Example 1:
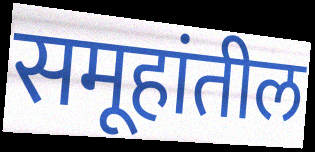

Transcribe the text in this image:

समूहांतील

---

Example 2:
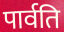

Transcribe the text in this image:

पार्वति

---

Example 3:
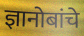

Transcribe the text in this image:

ज्ञानोबांचे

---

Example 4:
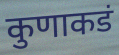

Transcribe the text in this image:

कुणाकडं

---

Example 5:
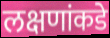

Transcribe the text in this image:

लक्षणांकडे